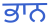
ਭਾਨ